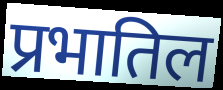
प्रभातिल